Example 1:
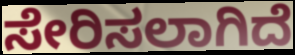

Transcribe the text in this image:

ಸೇರಿಸಲಾಗಿದೆ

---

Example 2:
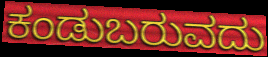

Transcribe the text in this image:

ಕಂಡುಬರುವದು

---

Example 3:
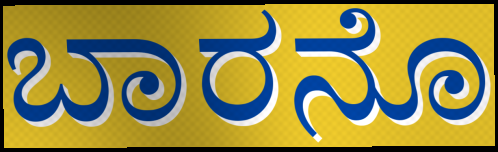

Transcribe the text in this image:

ಬಾರನೊ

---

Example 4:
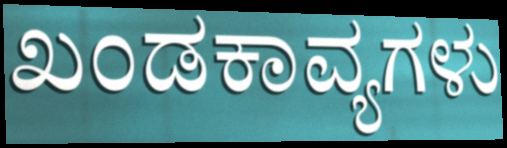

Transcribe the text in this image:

ಖಂಡಕಾವ್ಯಗಳು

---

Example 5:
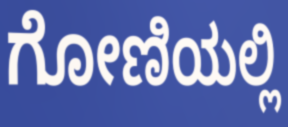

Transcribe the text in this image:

ಗೋಣಿಯಲ್ಲಿ